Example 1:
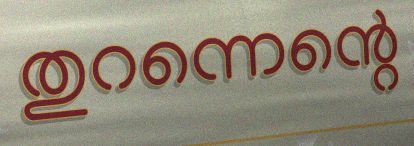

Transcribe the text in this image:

തുറന്നെന്റെ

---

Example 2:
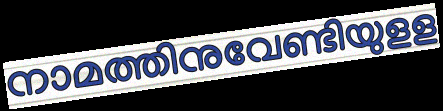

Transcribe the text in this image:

നാമത്തിനുവേണ്ടിയുളള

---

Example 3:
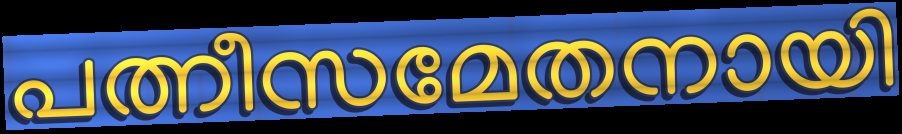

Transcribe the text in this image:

പത്നീസമേതനായി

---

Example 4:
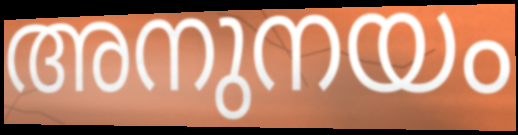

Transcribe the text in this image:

അനുനയം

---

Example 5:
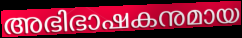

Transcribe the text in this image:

അഭിഭാഷകനുമായ